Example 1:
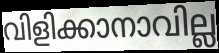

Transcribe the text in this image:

വിളിക്കാനാവില്ല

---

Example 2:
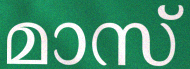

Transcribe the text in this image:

മാസ്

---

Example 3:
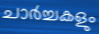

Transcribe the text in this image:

ചാർച്ചകളും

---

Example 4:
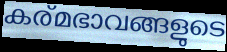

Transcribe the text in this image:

കര്മഭാവങ്ങളുടെ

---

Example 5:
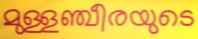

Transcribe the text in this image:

മുള്ളഞ്ചീരയുടെ